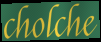
cholche